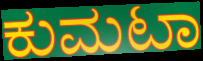
ಕುಮಟಾ